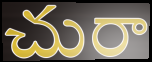
చురా